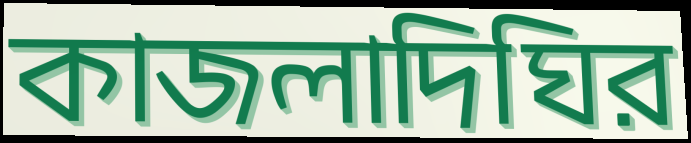
কাজলাদিঘির